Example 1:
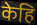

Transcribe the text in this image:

केहि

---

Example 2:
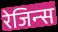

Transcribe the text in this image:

रेजिन्स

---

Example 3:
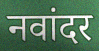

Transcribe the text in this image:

नवांदर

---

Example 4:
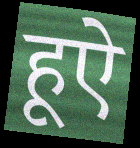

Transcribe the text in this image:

हूऐ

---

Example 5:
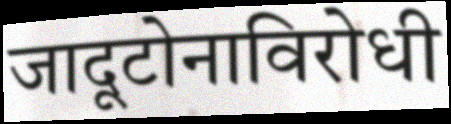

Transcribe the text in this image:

जादूटोनाविरोधी